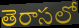
తెరాసలో